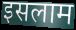
इसलाम